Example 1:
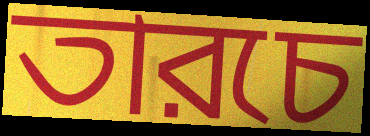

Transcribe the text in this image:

তারচে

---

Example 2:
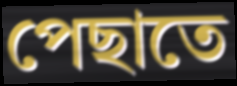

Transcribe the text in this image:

পেছাতে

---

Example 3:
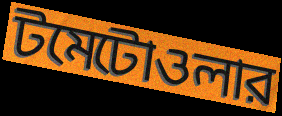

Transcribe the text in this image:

টমেটোওলার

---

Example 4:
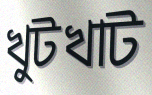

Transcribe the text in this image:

খুটখাট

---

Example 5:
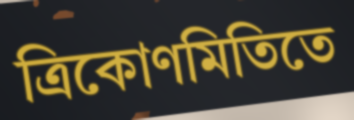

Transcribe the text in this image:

ত্রিকোণমিতিতে